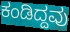
ಕಂಡಿದ್ದವು